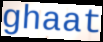
ghaat